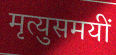
मृत्युसमयीं